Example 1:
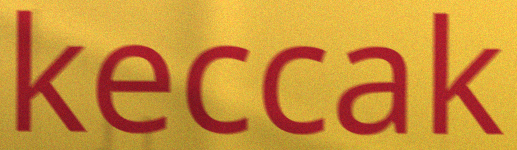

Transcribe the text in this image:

keccak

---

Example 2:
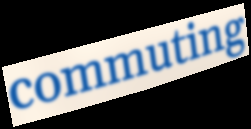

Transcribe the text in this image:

commuting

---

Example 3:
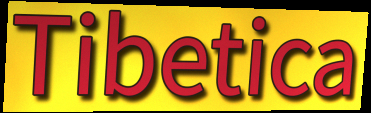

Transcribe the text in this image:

Tibetica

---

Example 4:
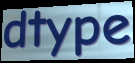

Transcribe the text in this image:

dtype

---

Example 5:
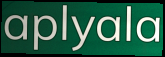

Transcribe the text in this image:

aplyala